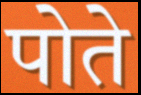
पोते